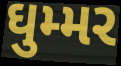
ઘુમ્મર